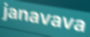
janavava